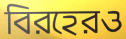
বিরহেরও